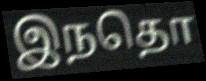
இநதொ